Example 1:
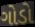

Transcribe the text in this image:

ગોડો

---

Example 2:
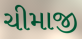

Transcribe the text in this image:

ચીમાજી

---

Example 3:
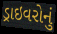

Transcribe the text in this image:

ડ્રાઇવરોનું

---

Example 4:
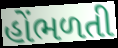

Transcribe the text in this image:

હોંભળતી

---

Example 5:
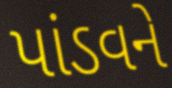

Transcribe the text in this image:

પાંડવને